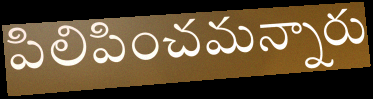
పిలిపించమన్నారు